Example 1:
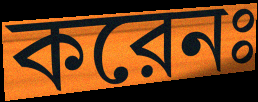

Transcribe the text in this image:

করেনঃ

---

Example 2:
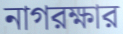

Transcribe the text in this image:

নাগরক্ষার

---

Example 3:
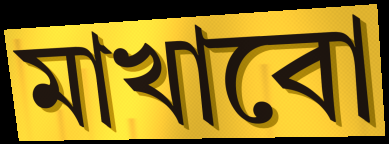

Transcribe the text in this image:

মাখাবো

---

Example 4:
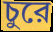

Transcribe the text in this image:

চুরে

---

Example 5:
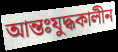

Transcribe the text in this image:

আন্তঃযুদ্ধকালীন